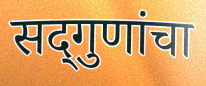
सद्‍गुणांचा